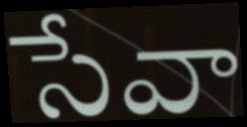
సేవా